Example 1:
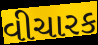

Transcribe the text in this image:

વીચારક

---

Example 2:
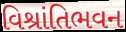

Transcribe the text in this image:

વિશ્રાંતિભવન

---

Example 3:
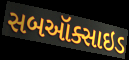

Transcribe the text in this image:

સબઑક્સાઇડ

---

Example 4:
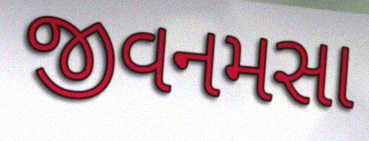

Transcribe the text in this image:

જીવનમસા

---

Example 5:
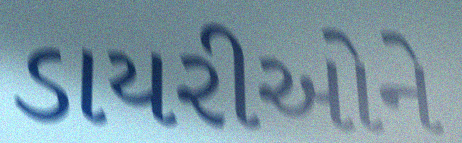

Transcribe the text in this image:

ડાયરીઓને